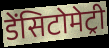
डेंसिटोमेट्री